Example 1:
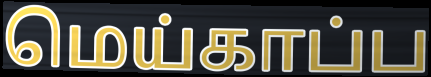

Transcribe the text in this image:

மெய்காப்ப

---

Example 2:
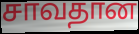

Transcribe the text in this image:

சாவதான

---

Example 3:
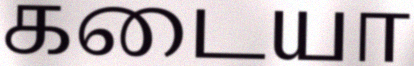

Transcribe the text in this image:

கடையா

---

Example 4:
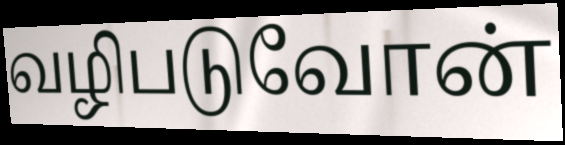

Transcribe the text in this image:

வழிபடுவோன்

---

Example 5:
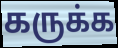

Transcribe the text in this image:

கருக்க